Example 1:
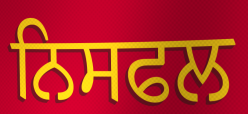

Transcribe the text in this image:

ਨਿਸਫਲ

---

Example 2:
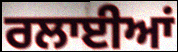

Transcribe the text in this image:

ਰਲਾਈਆਂ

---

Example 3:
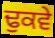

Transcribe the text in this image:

ਢੁਕਵੇ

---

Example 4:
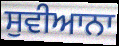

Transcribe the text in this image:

ਸੁਵੀਆਨਾ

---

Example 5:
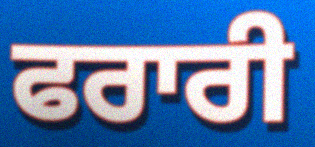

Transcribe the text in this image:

ਫਰਾਰੀ